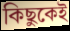
কিছুকেই